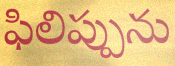
ఫిలిప్పును